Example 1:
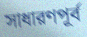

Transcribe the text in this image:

সাধারণপূর্ব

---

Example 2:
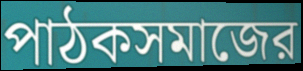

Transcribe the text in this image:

পাঠকসমাজের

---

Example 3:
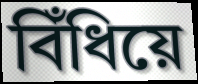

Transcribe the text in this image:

বিঁধিয়ে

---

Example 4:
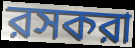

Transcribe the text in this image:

রসকরা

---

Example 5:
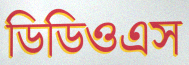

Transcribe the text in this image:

ডিডিওএস